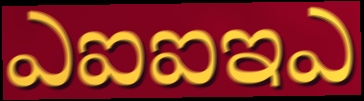
ఎఐఐఇఎ